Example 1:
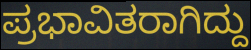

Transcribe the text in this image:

ಪ್ರಭಾವಿತರಾಗಿದ್ದು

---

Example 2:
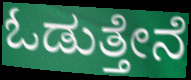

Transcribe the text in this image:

ಓಡುತ್ತೇನೆ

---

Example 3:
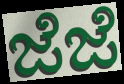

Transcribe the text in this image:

ಜೆಜೆ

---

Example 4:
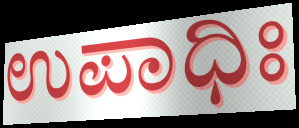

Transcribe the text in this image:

ಉಪಾಧಿಃ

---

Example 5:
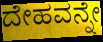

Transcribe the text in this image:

ದೇಹವನ್ನೇ